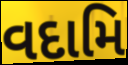
વદામિ